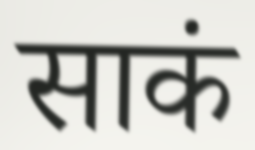
साकं